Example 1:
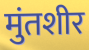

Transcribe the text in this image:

मुंतशीर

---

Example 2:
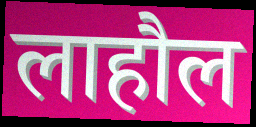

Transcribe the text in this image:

लाहौल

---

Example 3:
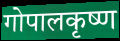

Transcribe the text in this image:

गोपालकृष्‍ण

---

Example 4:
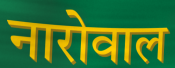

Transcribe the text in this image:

नारोवाल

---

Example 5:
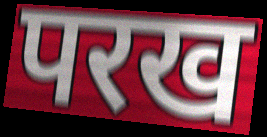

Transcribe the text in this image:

परख